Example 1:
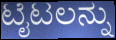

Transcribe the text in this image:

ಟೈಟಲನ್ನು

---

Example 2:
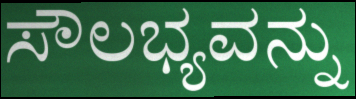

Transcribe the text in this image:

ಸೌಲಭ್ಯವನ್ನು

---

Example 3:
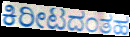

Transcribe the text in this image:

ಕಿರೀಟದಂತಹ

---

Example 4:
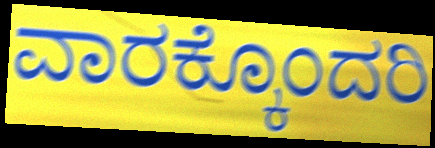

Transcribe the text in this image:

ವಾರಕ್ಕೊಂದರಿ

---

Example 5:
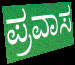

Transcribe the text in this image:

ಪ್ರವಾಸ